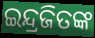
ଇନ୍ଦ୍ରଜିତଙ୍କ